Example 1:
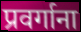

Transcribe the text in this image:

प्रवर्गाना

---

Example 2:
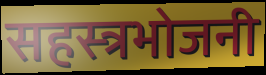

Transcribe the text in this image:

सहस्त्रभोजनी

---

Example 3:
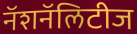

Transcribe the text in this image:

नॅशनॅलिटीज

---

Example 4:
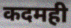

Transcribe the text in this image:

कदमही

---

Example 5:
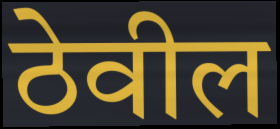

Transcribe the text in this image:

ठेवील